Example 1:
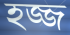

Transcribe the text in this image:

হজ্জ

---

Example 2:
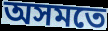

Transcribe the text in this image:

অসমতে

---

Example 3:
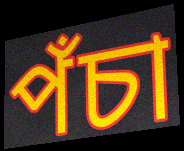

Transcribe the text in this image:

পঁচা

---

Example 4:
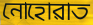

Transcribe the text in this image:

নোহোৱাত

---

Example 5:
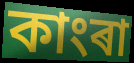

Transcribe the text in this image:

কাংৰা